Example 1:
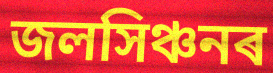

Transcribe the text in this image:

জলসিঞ্চনৰ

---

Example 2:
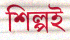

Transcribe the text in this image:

শিল্পই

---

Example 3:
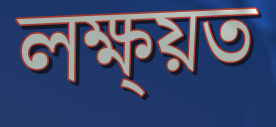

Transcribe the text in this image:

লক্ষ্য়ত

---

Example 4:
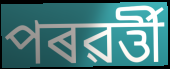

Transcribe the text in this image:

পৰৱৰ্ত্তী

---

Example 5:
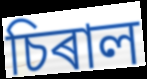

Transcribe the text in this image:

চিৰাল